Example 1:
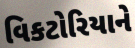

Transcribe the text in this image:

વિકટોરિયાને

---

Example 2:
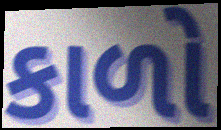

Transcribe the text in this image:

કાળો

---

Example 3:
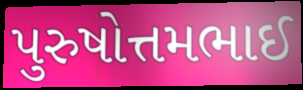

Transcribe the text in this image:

પુરુષોત્તમભાઈ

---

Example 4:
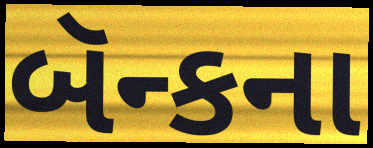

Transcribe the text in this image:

બૅન્કના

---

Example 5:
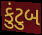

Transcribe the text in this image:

કુંટુબ